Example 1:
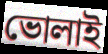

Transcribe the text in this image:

ভোলাই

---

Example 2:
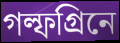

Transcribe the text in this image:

গল্ফগ্রিনে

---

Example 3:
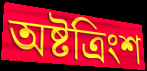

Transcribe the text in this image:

অষ্টত্রিংশ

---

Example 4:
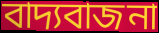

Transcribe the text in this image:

বাদ্যবাজনা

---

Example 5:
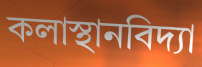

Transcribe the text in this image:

কলাস্থানবিদ্যা